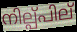
നില്പ്പില്